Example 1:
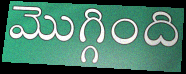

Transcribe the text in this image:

మొగ్గింది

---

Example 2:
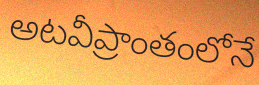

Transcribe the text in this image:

అటవీప్రాంతంలోనే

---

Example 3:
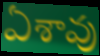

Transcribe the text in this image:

ఏశావు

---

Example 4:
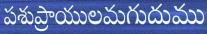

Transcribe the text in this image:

పశుప్రాయులమగుదుము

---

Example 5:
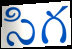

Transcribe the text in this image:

సిగ